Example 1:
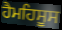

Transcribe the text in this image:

ਹੈਮਹਿਸੂਸ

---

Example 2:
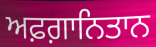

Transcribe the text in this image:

ਅਫ਼ਗ਼ਾਨਿਤਾਨ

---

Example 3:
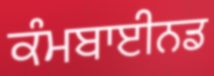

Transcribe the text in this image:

ਕੰਮਬਾਈਨਡ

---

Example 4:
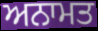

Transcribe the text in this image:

ਅਨਾਮਤ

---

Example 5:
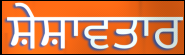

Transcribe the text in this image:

ਸ਼ੇਸ਼ਾਵਤਾਰ